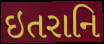
ઇતરાનિ